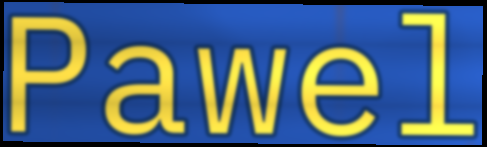
Pawel